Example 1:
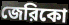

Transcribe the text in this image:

জেরিকো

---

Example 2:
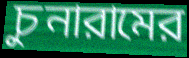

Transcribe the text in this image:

চুনারামের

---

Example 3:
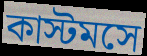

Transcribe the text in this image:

কাস্টমসে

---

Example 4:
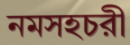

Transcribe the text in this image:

নমসহচরী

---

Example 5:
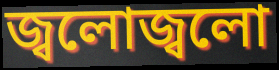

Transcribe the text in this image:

জ্বলোজ্বলো